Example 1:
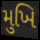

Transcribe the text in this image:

મુખિ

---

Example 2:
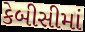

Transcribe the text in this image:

કેબીસીમાં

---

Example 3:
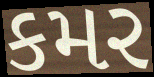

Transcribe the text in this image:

કમર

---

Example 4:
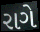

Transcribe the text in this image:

રાગે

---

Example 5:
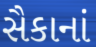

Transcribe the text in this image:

સૈકાનાં